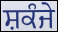
ਸ਼ਕੰਜੇ